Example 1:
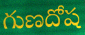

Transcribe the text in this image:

గుణదోష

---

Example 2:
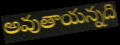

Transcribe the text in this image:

అవుతాయన్నది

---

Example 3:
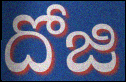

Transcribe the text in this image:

దోజి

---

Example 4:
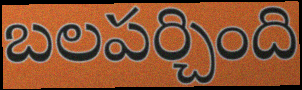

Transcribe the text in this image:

బలపర్చింది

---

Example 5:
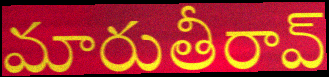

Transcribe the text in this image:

మారుతీరావ్